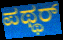
ಪಥ್ಥರ್